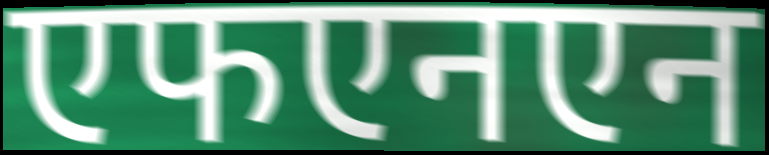
एफएनएन